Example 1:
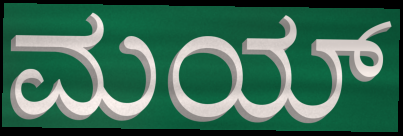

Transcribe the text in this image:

ಮಯ್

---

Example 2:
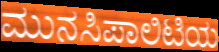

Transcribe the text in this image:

ಮುನಸಿಪಾಲಿಟಿಯ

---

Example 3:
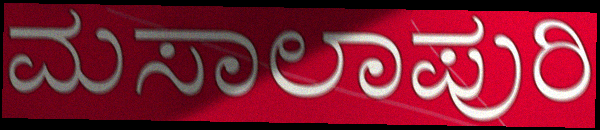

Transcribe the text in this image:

ಮಸಾಲಾಪುರಿ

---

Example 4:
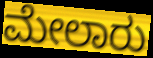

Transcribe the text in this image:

ಮೇಲಾರು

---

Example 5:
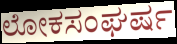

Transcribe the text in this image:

ಲೋಕಸಂಘರ್ಷ